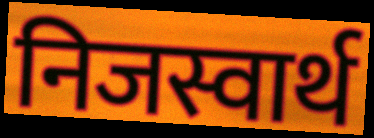
निजस्वार्थ